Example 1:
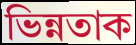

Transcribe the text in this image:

ভিন্নতাক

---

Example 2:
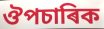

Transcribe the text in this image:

ঔপচাৰিক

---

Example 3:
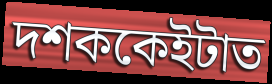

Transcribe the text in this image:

দশককেইটাত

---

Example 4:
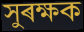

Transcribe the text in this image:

সুৰক্ষক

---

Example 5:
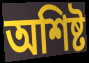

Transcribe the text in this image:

অশিষ্ট